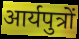
आर्यपुत्रों